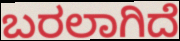
ಬರಲಾಗಿದೆ